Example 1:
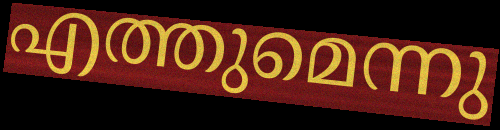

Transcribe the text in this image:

എത്തുമെന്നു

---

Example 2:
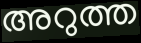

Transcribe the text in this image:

അറുത്ത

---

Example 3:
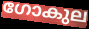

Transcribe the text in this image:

ഗോകുല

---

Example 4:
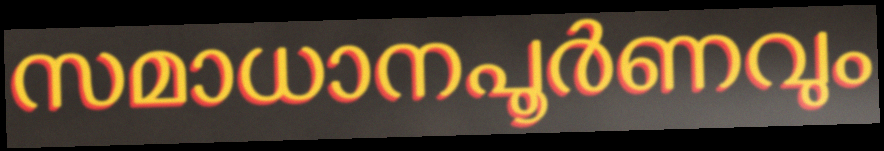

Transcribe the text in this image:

സമാധാനപൂർണവും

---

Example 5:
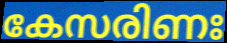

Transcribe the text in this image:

കേസരിണഃ